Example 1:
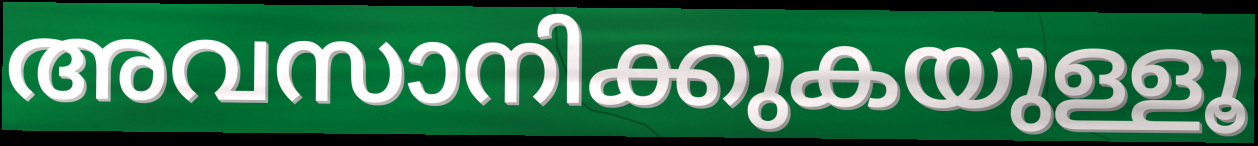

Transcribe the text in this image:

അവസാനിക്കുകയുള്ളൂ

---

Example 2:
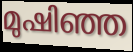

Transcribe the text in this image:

മുഷിഞ്ഞ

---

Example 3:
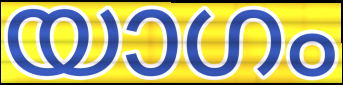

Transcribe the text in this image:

യാഗം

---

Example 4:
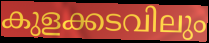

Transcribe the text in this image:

കുളക്കടവിലും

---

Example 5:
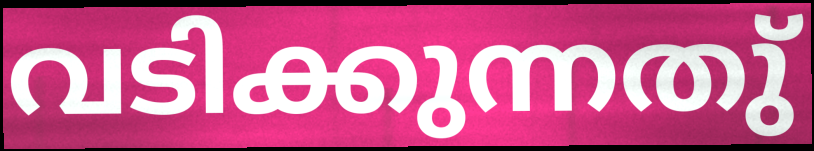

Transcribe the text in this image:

വടിക്കുന്നതു്